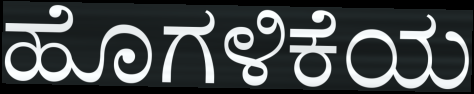
ಹೊಗಳಿಕೆಯ